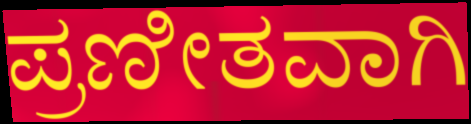
ಪ್ರಣೀತವಾಗಿ